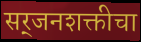
सर्जनशक्तीचा